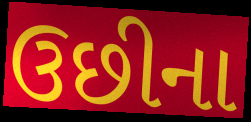
ઉછીના